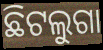
ଛିଟଲୁଗା